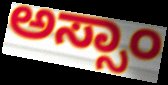
ಅಸ್ಸಾಂ